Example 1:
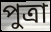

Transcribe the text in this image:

পুত্রা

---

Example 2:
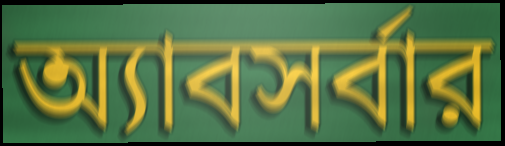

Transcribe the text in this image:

অ্যাবসর্বার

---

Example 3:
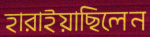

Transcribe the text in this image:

হারাইয়াছিলেন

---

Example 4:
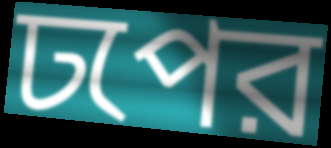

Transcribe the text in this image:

ঢপের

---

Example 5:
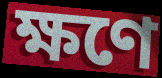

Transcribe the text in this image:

ক্ষণে